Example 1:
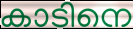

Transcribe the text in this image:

കാടിനെ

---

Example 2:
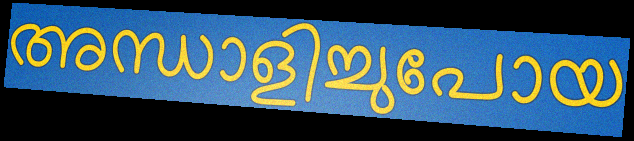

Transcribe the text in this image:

അന്ധാളിച്ചുപോയ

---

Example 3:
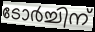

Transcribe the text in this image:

ടോർച്ചിന്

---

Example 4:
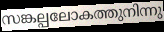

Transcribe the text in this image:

സങ്കല്പലോകത്തുനിന്നു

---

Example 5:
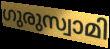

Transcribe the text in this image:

ഗുരുസ്വാമി